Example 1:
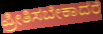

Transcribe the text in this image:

ಪ್ರೀತಿಸಬೇಕಾದರೆ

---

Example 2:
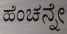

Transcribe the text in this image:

ಹೆಂಚನ್ನೇ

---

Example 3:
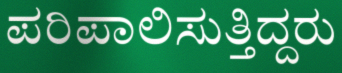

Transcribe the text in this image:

ಪರಿಪಾಲಿಸುತ್ತಿದ್ದರು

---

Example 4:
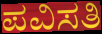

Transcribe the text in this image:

ಪವಿಸತಿ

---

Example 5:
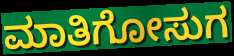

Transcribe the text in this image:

ಮಾತಿಗೋಸುಗ